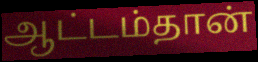
ஆட்டம்தான்